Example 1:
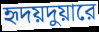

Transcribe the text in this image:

হৃদয়দুয়ারে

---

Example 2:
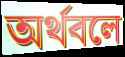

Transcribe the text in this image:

অর্থবলে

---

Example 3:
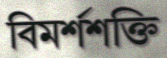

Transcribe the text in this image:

বিমর্শশক্তি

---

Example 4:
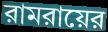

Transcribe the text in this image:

রামরায়ের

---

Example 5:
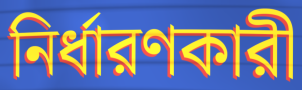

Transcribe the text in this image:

নির্ধারণকারী